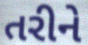
તરીને